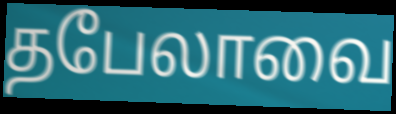
தபேலாவை